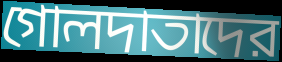
গোলদাতাদের